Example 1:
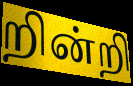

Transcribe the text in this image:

றின்றி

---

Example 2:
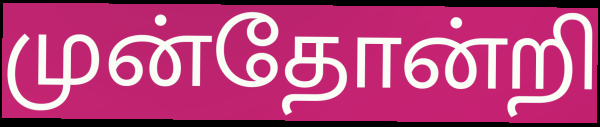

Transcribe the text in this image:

முன்தோன்றி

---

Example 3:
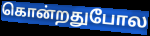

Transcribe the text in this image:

கொன்றதுபோல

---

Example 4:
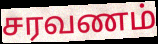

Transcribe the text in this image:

சரவணம்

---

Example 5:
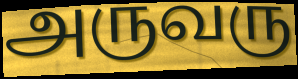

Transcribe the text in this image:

அருவரு